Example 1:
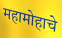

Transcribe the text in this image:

महामोहाचे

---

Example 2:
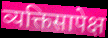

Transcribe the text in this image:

व्यक्तिसापेक्ष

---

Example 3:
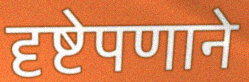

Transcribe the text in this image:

दृष्टेपणाने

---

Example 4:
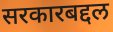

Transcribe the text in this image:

सरकारबद्दल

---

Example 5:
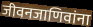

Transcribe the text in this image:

जीवनजाणिवांना